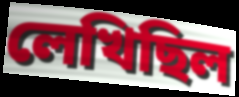
লেখিছিল